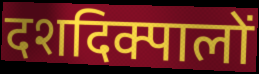
दशदिक्पालों